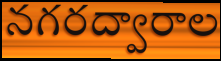
నగరద్వారాల